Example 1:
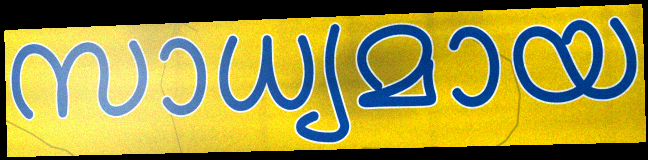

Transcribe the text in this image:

സാധ്യമായ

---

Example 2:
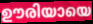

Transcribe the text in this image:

ഊരിയായെ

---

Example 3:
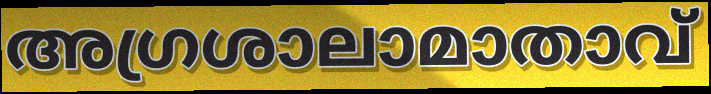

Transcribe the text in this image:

അഗ്രശാലാമാതാവ്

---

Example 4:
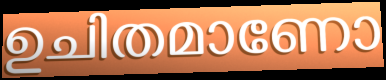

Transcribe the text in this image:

ഉചിതമാണോ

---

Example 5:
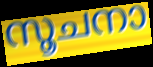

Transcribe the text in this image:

സൂചനാ